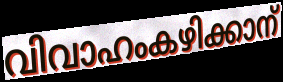
വിവാഹംകഴിക്കാന്